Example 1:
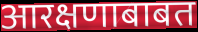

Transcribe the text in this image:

आरक्षणाबाबत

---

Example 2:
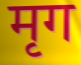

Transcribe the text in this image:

मृग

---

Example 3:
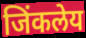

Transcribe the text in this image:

जिंकलेय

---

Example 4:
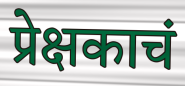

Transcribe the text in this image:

प्रेक्षकाचं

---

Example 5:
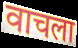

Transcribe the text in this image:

वाचला